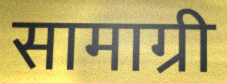
सामाग्री